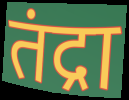
तंद्रा